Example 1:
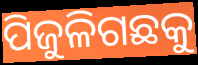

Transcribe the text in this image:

ପିଜୁଳିଗଛକୁ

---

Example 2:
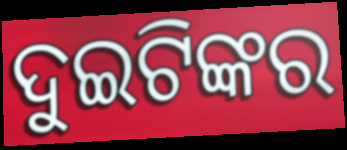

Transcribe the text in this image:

ଦୁଇଟିଙ୍କର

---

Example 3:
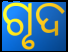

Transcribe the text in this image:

ଗୃଦ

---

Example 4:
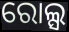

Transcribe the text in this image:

ରୋଲ୍ସ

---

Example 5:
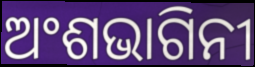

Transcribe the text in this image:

ଅଂଶଭାଗିନୀ